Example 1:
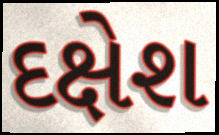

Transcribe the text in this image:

દક્ષેશ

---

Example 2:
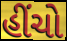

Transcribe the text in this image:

હીંચો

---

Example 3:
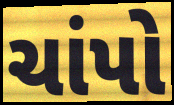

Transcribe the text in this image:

ચાંપો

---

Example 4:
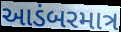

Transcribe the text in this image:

આડંબરમાત્ર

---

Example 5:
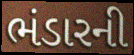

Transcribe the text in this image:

ભંડારની